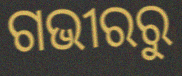
ଗଭୀରରୁ